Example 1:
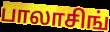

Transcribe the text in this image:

பாலாசிங்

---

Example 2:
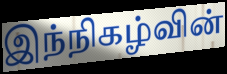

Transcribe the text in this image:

இந்நிகழ்வின்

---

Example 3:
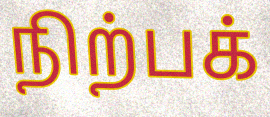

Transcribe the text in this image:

நிற்பக்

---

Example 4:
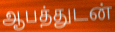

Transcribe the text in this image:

ஆபத்துடன்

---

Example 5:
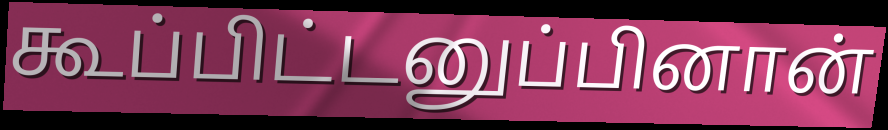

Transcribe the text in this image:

கூப்பிட்டனுப்பினான்